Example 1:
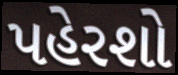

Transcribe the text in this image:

પહેરશો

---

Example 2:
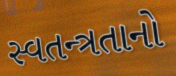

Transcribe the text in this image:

સ્વતન્ત્રતાનો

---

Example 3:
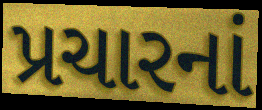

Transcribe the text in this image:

પ્રચારનાં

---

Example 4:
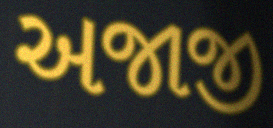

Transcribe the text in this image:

અજાજી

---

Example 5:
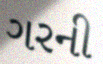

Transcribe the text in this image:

ગરની